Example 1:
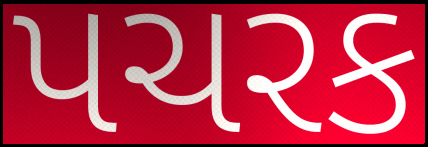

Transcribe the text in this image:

પચરક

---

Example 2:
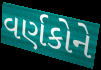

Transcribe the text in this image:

વર્ણકોને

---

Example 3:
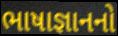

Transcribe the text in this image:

ભાષાજ્ઞાનનો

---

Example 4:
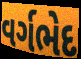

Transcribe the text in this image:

વર્ગભેદ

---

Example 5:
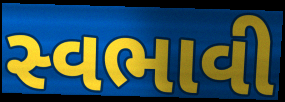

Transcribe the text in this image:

સ્વભાવી